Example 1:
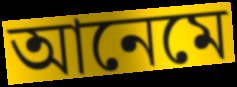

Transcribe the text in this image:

আনেমে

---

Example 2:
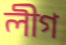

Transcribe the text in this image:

লীগ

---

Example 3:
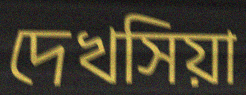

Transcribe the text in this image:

দেখসিয়া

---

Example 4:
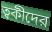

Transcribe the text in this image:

ত্বকীদের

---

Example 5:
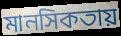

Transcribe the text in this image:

মানসিকতায়